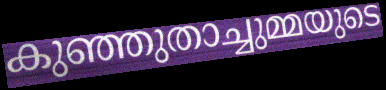
കുഞ്ഞുതാച്ചുമ്മയുടെ